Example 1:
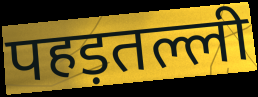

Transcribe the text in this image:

पहड़तल्ली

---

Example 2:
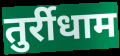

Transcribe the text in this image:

तुर्रीधाम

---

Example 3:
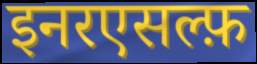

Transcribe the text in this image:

इनरएसल्फ़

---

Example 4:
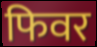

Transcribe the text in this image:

फिवर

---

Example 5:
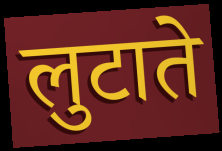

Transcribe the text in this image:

लुटाते